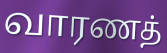
வாரணத்